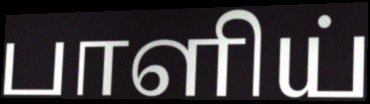
பாளிய்